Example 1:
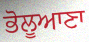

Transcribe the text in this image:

ਭੋਲੂਆਣਾ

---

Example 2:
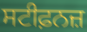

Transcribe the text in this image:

ਸਟੀਫ਼ਨਜ਼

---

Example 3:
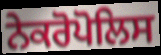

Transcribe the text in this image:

ਨੇਕਰੋਪੋਲਿਸ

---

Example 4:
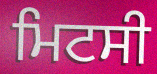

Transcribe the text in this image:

ਮਿਟਸੀ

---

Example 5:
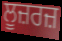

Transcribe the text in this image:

ਲੂਜ਼ਰਜ਼